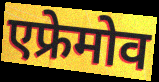
एफ्रेमोव